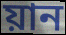
য়ান